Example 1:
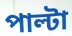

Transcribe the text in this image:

পাল্টা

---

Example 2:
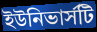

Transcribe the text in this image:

ইউনিভার্সটি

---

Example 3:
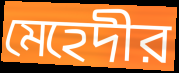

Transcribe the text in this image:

মেহেদীর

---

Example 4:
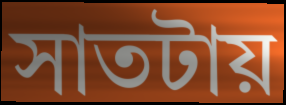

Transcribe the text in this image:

সাতটায়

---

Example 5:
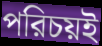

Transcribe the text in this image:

পরিচয়ই